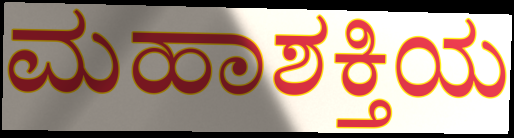
ಮಹಾಶಕ್ತಿಯ